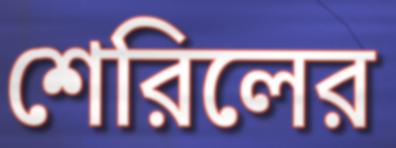
শেরিলের